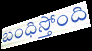
బంధిస్తోంది